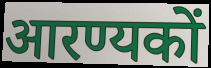
आरण्यकों